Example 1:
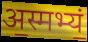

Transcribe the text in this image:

अ॒स्मभ्यं॒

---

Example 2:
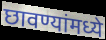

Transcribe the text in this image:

छावण्यांमध्ये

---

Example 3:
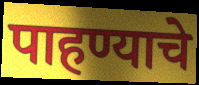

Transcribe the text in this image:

पाहण्याचे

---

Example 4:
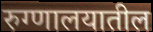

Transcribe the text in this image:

रुग्णालयातील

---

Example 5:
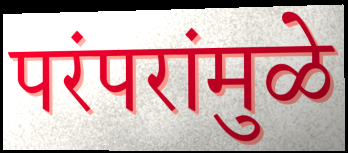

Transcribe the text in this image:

परंपरांमुळे